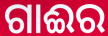
ଗାଈର